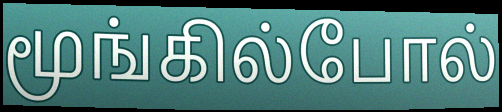
மூங்கில்போல்